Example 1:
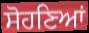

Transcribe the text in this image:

ਸੋਹਣਿਆਂ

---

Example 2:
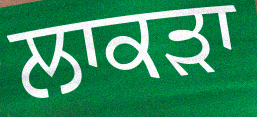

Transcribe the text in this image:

ਲਾਕੜਾ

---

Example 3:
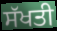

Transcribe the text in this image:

ਸੱਖਤੀ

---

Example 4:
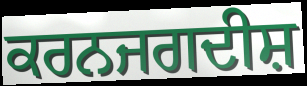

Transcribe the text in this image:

ਕਰਨਜਗਦੀਸ਼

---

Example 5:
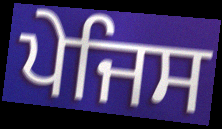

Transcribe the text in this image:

ਪੇਜਿਸ